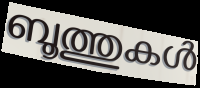
ബൂത്തുകൾ